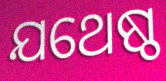
ଯଥେଷ୍ଠ